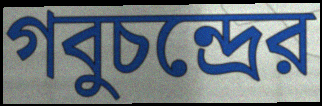
গবুচন্দ্রের